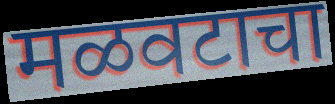
मळवटाचा